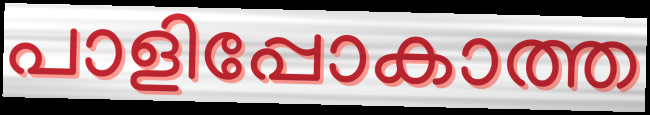
പാളിപ്പോകാത്ത